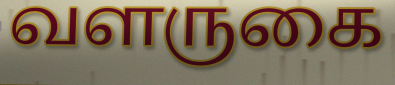
வளருகை